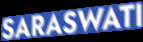
SARASWATI